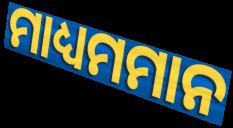
ମାଧ୍ୟମମାନ